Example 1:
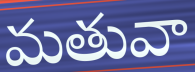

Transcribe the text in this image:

మతువా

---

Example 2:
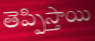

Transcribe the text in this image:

తెప్పిస్తాయి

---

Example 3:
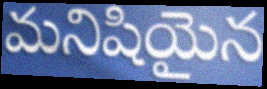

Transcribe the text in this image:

మనిషియైన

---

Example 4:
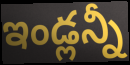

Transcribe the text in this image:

ఇండ్లన్నీ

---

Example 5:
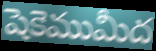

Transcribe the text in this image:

షెకెముమీద